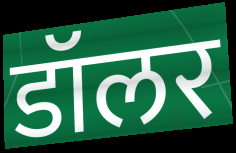
डॉलर